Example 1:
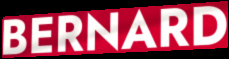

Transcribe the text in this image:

BERNARD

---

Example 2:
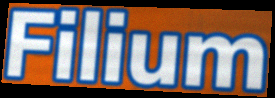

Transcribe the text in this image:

Filium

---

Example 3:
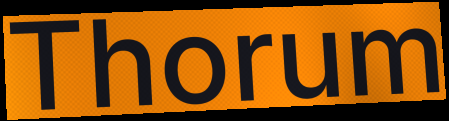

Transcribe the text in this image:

Thorum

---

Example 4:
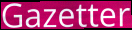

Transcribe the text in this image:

Gazetter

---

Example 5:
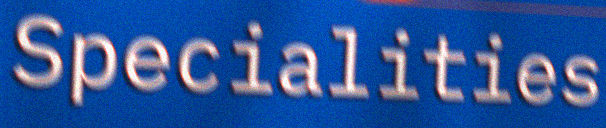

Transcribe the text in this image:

Specialities